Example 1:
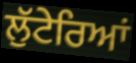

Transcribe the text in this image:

ਲੁੱਟੇਰਿਆਂ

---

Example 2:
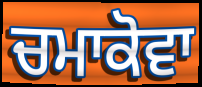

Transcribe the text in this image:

ਚਮਾਕੋਵਾ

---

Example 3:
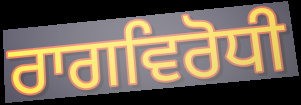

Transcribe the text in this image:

ਰਾਗਵਿਰੋਧੀ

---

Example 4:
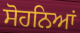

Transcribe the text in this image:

ਸੋਹਨਿਆਂ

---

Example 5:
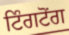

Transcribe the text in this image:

ਟਿੰਗਟੋਂਗ